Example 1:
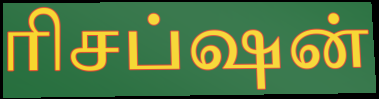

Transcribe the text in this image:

ரிசப்ஷன்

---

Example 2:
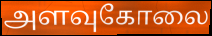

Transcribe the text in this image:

அளவுகோலை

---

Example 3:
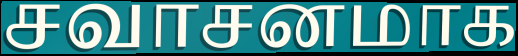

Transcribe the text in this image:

சவாசனமாக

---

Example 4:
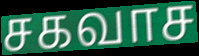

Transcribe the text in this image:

சகவாச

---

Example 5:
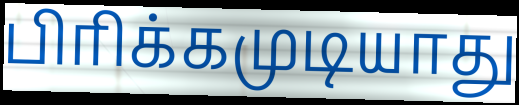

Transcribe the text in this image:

பிரிக்கமுடியாது